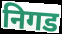
निगड